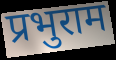
प्रभुराम